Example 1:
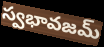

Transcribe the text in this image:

స్వభావజమ్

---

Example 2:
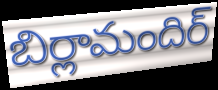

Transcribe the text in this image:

బిర్లామందిర్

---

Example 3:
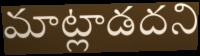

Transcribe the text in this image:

మాట్లాడదని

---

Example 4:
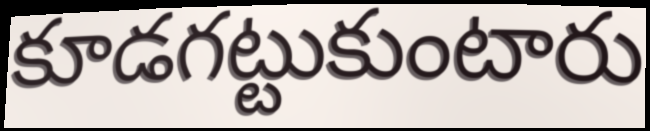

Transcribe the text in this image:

కూడగట్టుకుంటారు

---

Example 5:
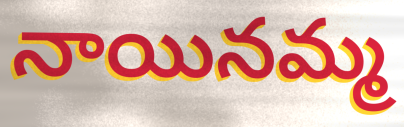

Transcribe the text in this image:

నాయినమ్మ